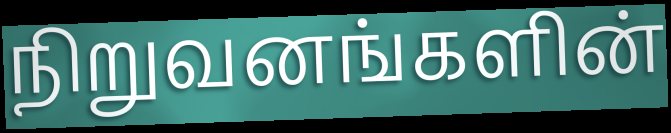
நிறுவனங்களின்